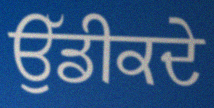
ਉੱਡੀਕਦੇ